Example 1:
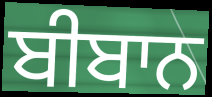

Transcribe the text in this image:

ਬੀਬਾਨ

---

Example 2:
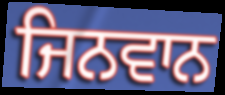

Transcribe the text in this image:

ਜਿਨਵਾਨ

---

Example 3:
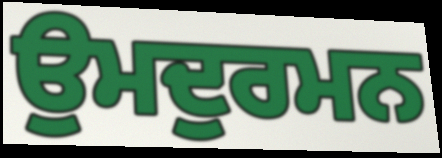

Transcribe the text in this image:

ਉਮਦੁਰਮਨ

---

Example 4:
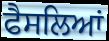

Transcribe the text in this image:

ਫੈਸਲਿਆਂ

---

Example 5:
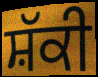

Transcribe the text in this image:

ਸ਼ੱਕੀ